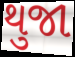
થુજા